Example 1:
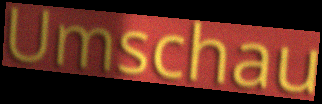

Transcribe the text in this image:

Umschau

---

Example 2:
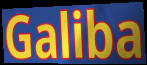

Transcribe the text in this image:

Galiba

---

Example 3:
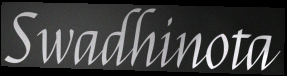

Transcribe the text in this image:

Swadhinota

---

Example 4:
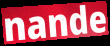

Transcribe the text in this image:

nande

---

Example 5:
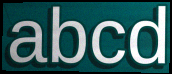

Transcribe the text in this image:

abcd